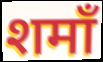
शमाँ